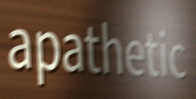
apathetic